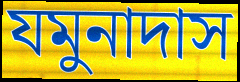
যমুনাদাস